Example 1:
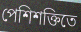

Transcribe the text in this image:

পেশিশক্তিতে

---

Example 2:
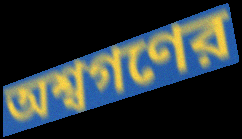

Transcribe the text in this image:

অশ্বগণের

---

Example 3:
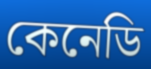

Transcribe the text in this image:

কেনেডি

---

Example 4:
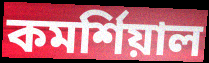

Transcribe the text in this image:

কমর্শিয়াল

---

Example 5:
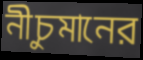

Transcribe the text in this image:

নীচুমানের